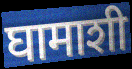
घामाशी